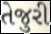
તેજુરી